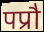
पप्रौ